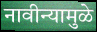
नावीन्यामुळे